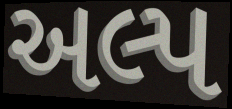
અલ્પ